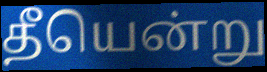
தீயென்று